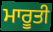
ਮਾਰੂਤੀ